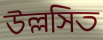
উল্লসিত